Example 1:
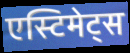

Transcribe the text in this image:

एस्टिमेट्स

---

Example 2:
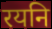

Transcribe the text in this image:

रयनि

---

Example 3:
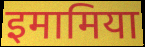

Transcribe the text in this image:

इमामिया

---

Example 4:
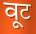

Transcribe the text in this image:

वूट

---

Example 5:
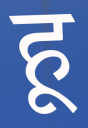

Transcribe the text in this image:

हू